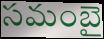
సమంబై